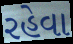
રહેવા